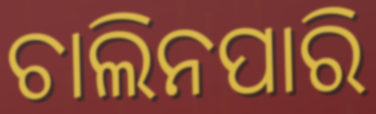
ଚାଲିନପାରି